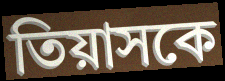
তিয়াসকে